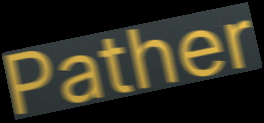
Pather